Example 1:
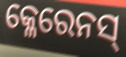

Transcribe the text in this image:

କ୍ଳେରେନସ୍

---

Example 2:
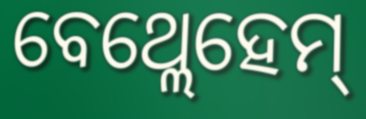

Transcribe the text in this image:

ବେଥ୍ଲେହେମ୍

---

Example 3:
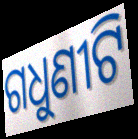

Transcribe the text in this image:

ଗଧୁଣୀଟି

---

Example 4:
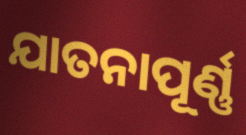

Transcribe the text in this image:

ଯାତନାପୂର୍ଣ୍ଣ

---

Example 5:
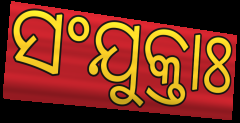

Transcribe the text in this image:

ସଂଯୁକ୍ତାଃ